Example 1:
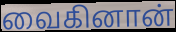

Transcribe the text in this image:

வைகினான்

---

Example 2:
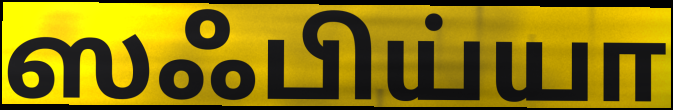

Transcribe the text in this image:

ஸஃபிய்யா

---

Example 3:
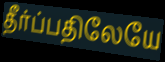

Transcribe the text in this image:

தீர்ப்பதிலேயே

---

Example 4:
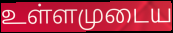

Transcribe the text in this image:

உள்ளமுடைய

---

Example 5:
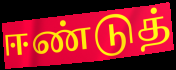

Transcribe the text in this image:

ஈண்டுத்